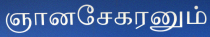
ஞானசேகரனும்